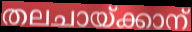
തലചായ്ക്കാന്